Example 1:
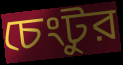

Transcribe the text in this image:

চেংটুর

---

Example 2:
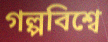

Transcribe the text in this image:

গল্পবিশ্বে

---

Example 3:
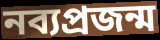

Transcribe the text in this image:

নব্যপ্রজন্ম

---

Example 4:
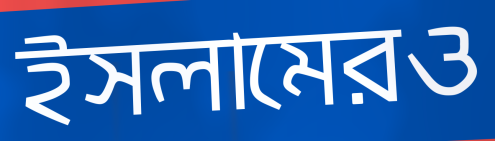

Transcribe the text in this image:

ইসলামেরও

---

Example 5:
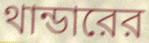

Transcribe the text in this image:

থান্ডারের